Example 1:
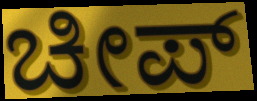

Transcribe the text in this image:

ಚೀಪ್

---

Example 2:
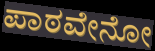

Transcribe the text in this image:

ಪಾಠವೇನೋ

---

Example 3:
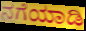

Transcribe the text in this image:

ನಗೆಯಾಡಿ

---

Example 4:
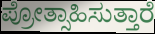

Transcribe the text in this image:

ಪ್ರೋತ್ಸಾಹಿಸುತ್ತಾರೆ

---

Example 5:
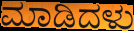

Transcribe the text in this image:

ಮಾಡಿದಳು